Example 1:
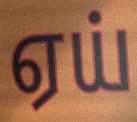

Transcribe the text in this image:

ஏய்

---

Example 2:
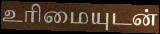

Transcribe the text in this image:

உரிமையுடன்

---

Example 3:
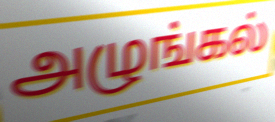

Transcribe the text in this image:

அழுங்கல்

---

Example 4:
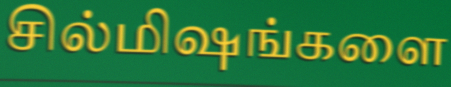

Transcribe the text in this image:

சில்மிஷங்களை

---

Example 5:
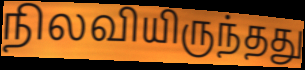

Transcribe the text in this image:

நிலவியிருந்தது